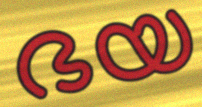
ഭയ